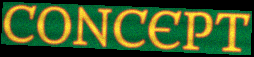
CONCEPT